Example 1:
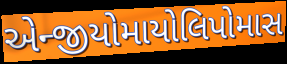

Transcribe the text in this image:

એન્જીયોમાયોલિપોમાસ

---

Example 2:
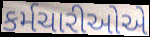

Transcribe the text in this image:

કર્મચારીઓએ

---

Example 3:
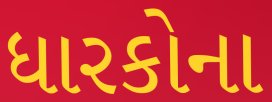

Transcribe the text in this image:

ધારકોના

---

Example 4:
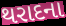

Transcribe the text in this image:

થરાદના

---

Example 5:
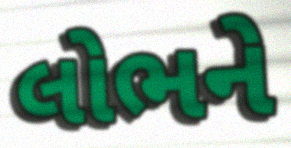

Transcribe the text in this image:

લોભને